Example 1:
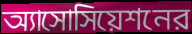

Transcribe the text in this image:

অ্যাসোসিয়েশনের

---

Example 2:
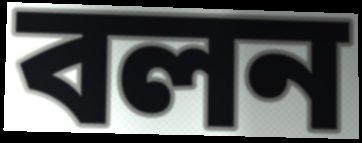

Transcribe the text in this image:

বলন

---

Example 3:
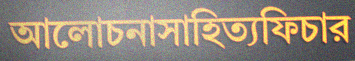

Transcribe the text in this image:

আলোচনাসাহিত্যফিচার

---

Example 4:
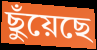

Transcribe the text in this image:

ছুঁয়েছে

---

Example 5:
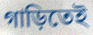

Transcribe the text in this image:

গাড়িতেই